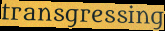
transgressing